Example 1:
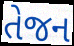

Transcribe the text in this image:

તેજન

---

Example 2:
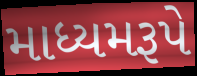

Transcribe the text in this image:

માધ્યમરૂપે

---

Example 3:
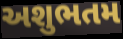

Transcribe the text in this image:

અશુભતમ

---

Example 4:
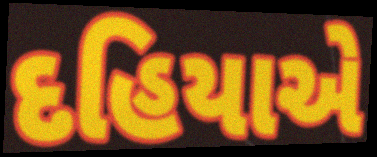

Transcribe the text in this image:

દહિયાએ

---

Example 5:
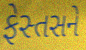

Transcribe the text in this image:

ફેસ્તસને